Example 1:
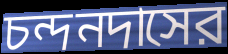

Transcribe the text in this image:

চন্দনদাসের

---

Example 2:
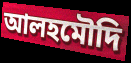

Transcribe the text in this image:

আলহমৌদি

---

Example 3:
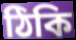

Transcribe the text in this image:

ঠিকি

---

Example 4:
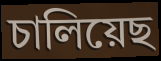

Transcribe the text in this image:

চালিয়েছ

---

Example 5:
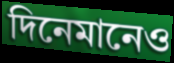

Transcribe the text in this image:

দিনেমানেও